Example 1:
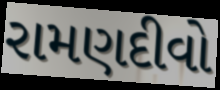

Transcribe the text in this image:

રામણદીવો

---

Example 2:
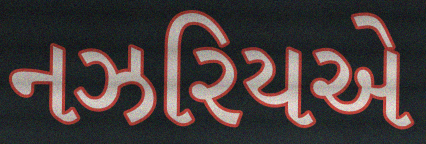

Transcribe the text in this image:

નઝરિયએ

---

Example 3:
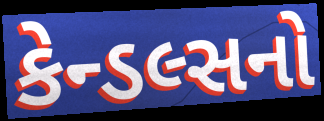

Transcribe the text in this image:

કેન્ડલ્સનો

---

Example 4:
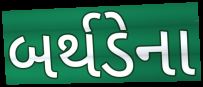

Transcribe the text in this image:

બર્થડેના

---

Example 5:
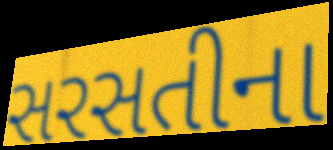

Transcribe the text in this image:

સરસતીના